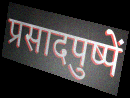
प्रसादपुष्पें